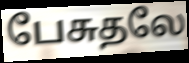
பேசுதலே